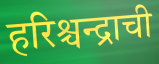
हरिश्चन्द्राची